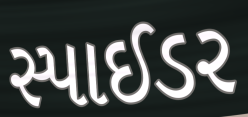
સ્પાઈડર